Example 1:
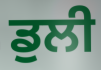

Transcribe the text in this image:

ਡੁਲੀ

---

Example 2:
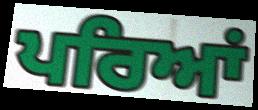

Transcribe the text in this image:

ਪਰਿਆਂ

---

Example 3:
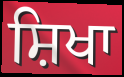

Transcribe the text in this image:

ਸ਼ਿਖਾ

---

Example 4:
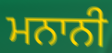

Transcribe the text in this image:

ਮਨਾਨੀ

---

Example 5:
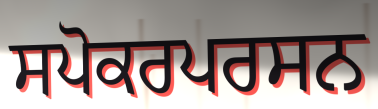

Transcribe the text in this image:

ਸਪੋਕਰਪਰਸਨ